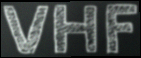
VHF